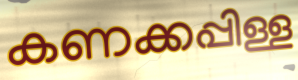
കണക്കപ്പിള്ള